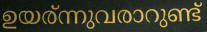
ഉയര്ന്നുവരാറുണ്ട്